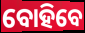
ବୋହିବେ